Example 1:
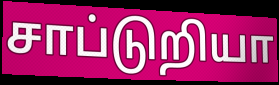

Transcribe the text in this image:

சாப்டுறியா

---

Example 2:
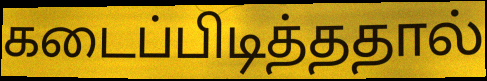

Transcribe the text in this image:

கடைப்பிடித்ததால்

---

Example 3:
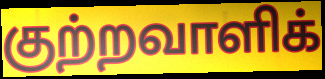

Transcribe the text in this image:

குற்றவாளிக்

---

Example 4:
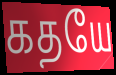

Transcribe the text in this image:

கதயே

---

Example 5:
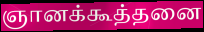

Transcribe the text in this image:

ஞானக்கூத்தனை